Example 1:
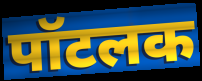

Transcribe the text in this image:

पॉटलक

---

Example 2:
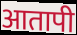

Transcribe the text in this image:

आतापी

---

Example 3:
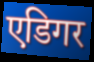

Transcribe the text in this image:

एडिगर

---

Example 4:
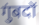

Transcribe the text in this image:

गुंबदों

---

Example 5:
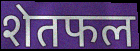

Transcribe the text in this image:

शेतफल